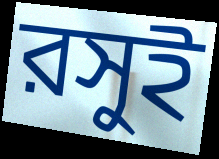
রসুই